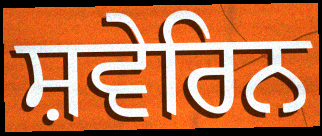
ਸ਼ਵੇਰਿਨ